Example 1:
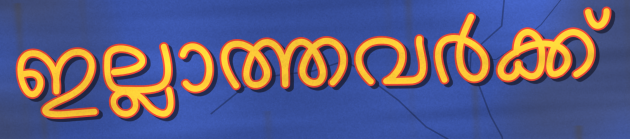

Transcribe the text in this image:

ഇല്ലാത്തവർക്ക്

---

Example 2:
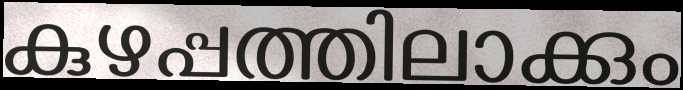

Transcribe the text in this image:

കുഴപ്പത്തിലാക്കും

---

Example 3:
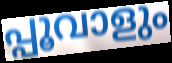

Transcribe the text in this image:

പ്പൂവാളും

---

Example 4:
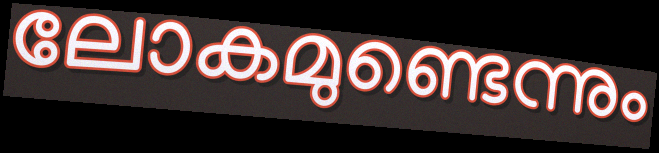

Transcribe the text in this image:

ലോകമുണ്ടെന്നും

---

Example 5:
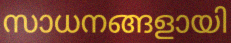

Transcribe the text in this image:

സാധനങ്ങളായി